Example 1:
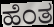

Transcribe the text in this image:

ಹೆಂತ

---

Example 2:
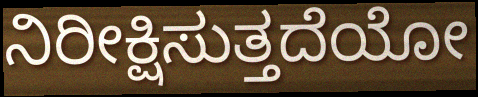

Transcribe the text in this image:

ನಿರೀಕ್ಷಿಸುತ್ತದೆಯೋ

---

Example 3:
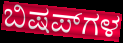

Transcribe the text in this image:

ಬಿಷಪ್‌ಗಳ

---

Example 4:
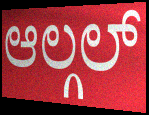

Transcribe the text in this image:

ಆಲ್ಗಲ್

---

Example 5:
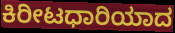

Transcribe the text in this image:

ಕಿರೀಟಧಾರಿಯಾದ